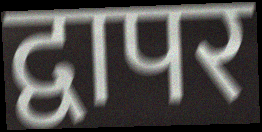
द्वापर